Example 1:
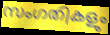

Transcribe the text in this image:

സംഗതികളും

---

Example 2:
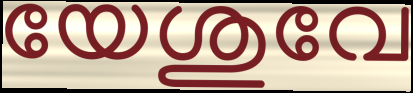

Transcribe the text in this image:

യേശുവേ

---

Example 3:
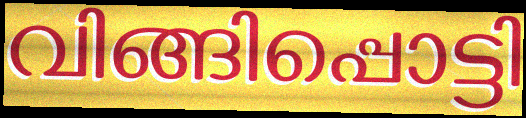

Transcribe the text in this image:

വിങ്ങിപ്പൊട്ടി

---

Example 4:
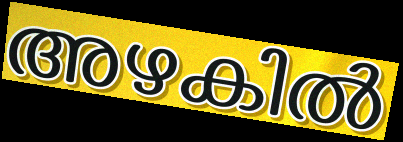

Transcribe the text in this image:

അഴകിൽ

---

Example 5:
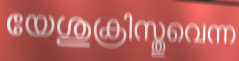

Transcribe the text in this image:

യേശുക്രിസ്തുവെന്ന